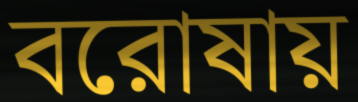
বরোষায়